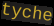
tyche